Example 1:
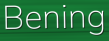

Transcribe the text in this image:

Bening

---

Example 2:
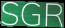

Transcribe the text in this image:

SGR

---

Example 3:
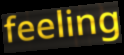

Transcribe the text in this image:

feeling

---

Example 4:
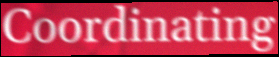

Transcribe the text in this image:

Coordinating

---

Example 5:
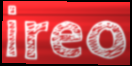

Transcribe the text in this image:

ireo